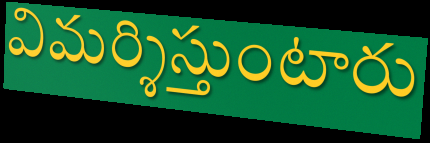
విమర్శిస్తుంటారు